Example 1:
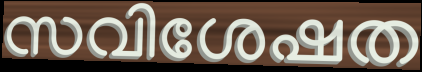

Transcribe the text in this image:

സവിശേഷത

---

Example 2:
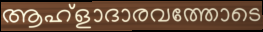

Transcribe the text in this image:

ആഹ്ളാദാരവത്തോടെ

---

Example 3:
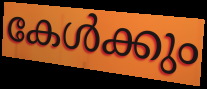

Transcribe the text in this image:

കേൾക്കും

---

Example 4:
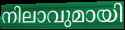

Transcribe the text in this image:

നിലാവുമായി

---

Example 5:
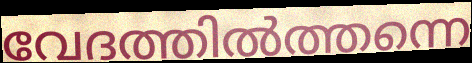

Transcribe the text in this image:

വേദത്തിൽത്തന്നെ